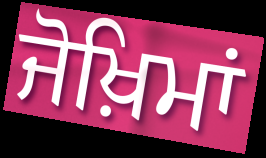
ਜੋਖ਼ਿਮਾਂ